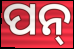
ପନ୍